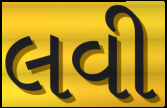
લવી